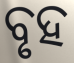
ବୃହ